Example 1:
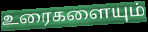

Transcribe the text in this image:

உரைகளையும்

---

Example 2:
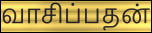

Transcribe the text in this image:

வாசிப்பதன்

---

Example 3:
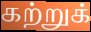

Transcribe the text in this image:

கற்றுக்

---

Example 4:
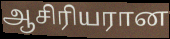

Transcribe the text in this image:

ஆசிரியரான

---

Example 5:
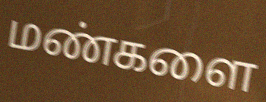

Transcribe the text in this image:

மண்களை